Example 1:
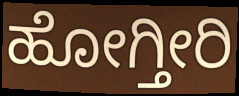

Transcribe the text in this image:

ಹೋಗ್ತೀರಿ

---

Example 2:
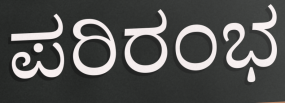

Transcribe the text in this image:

ಪರಿರಂಭ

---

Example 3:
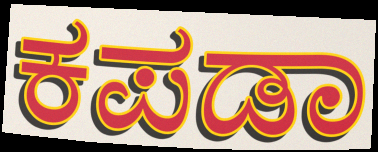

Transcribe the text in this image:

ಕಪಡಾ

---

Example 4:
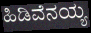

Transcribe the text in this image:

ಹಿಡಿವೆನಯ್ಯ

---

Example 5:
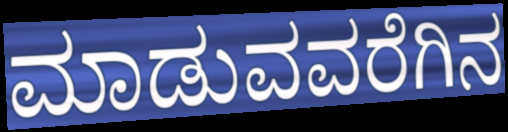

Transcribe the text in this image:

ಮಾಡುವವರೆಗಿನ